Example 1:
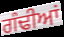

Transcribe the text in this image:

ਗੰਢੀਆਂ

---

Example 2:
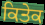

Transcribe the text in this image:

ਕਿਤੇਕ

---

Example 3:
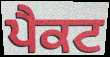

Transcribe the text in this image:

ਪੈਕਟ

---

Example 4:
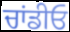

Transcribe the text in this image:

ਚਾਂਡੀਓ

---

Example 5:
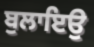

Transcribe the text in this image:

ਬੁਲਾਇਉ